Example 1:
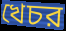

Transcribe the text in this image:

খেচর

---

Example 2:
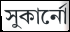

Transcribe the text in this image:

সুকার্নো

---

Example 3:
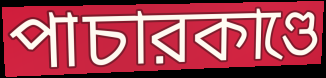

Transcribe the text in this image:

পাচারকাণ্ডে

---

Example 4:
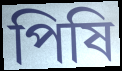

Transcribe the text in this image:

পিষি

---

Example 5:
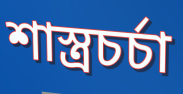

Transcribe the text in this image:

শাস্ত্রচর্চা